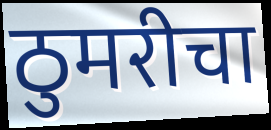
ठुमरीचा